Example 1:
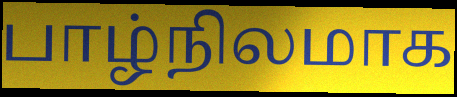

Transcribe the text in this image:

பாழ்நிலமாக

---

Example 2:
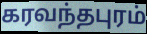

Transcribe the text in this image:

கரவந்தபுரம்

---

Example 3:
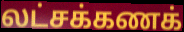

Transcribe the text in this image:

லட்சக்கணக்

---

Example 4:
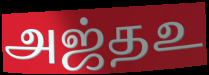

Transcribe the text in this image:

அஜ்தஉ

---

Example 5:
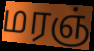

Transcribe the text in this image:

மரஞ்